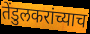
तेंडुलकरांच्याच